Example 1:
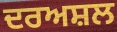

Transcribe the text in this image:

ਦਰਅਸ਼ਲ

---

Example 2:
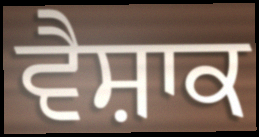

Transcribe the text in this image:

ਵੈਸ਼ਾਕ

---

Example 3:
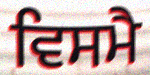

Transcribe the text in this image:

ਵਿਸਮੈ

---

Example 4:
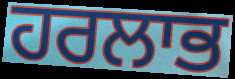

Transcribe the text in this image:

ਹਰਲਾਭ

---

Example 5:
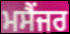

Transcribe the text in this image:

ਮਸੈਂਜਰ